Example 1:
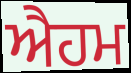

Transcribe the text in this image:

ਐਹਮ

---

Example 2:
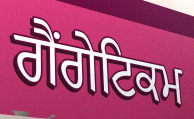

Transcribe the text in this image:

ਗੈਂਗੇਟਿਕਮ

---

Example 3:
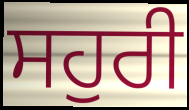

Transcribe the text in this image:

ਸਹੁਰੀ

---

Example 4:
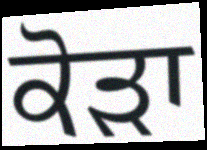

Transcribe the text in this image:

ਕੋੜਾ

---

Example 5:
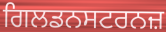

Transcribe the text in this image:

ਗਿਲਡਨਸਟਰਨਜ਼